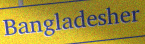
Bangladesher